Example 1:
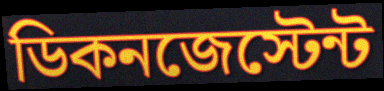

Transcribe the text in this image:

ডিকনজেস্টেন্ট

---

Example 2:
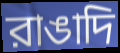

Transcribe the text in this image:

রাঙাদি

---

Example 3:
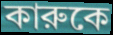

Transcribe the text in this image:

কারুকে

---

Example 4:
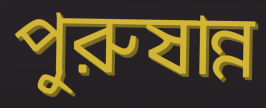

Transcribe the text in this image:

পুরুষান্ন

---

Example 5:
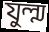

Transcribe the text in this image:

যুল্ম